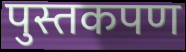
पुस्तकपण